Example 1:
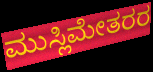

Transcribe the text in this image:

ಮುಸ್ಲಿಮೇತರರ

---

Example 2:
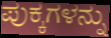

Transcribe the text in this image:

ಪುಕ್ಕಗಳನ್ನು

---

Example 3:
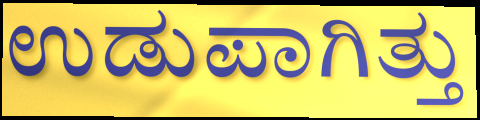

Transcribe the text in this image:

ಉಡುಪಾಗಿತ್ತು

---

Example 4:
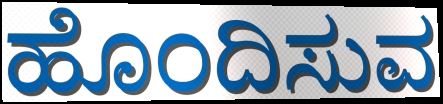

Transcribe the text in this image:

ಹೊಂದಿಸುವ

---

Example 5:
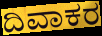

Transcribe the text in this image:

ದಿವಾಕರ